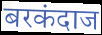
बरकंदाज